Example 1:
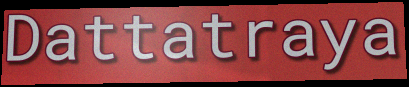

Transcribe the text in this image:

Dattatraya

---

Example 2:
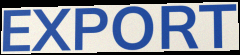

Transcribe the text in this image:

EXPORT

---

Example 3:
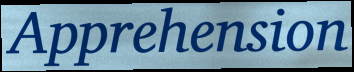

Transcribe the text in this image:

Apprehension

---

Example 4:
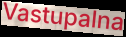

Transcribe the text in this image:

Vastupalna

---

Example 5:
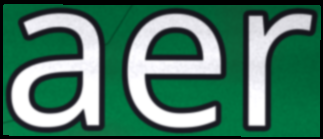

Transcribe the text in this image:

aer